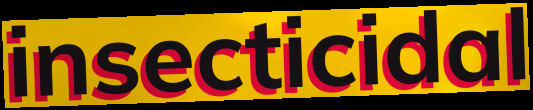
insecticidal